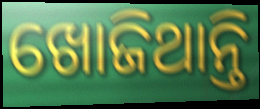
ଖୋଜିଥାନ୍ତି